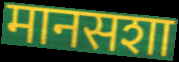
मानसशा